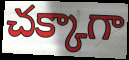
చక్కాగా